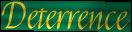
Deterrence